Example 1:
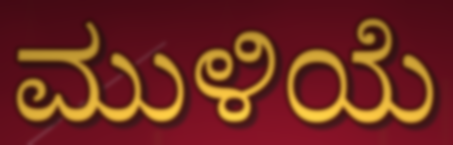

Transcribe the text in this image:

ಮುಳಿಯೆ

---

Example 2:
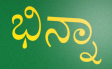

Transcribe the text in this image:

ಭಿನ್ನಾ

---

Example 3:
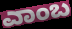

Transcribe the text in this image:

ಎಾಂಬ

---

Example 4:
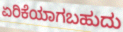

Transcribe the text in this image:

ಏರಿಕೆಯಾಗಬಹುದು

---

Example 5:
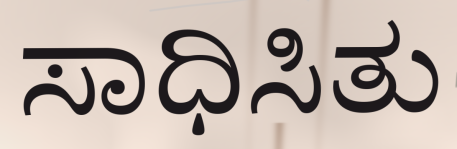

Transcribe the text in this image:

ಸಾಧಿಸಿತು